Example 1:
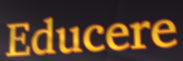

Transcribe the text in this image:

Educere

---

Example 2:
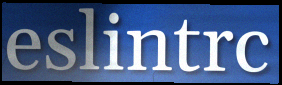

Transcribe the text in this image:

eslintrc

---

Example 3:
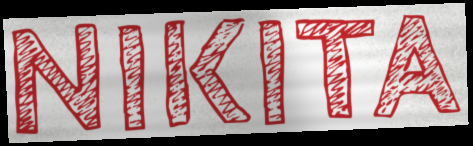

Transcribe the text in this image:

NIKITA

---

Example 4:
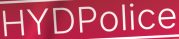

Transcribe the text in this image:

HYDPolice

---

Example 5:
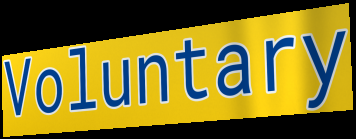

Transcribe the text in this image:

Voluntary